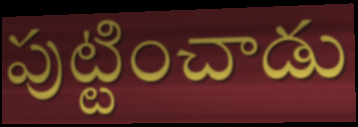
పుట్టించాడు